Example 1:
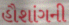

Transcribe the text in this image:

હૌશાંગની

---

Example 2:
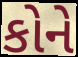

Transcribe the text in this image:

કોને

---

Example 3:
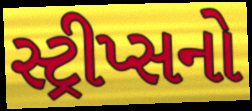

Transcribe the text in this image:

સ્ટ્રીપ્સનો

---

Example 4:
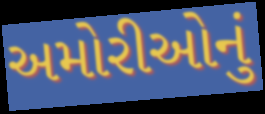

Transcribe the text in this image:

અમોરીઓનું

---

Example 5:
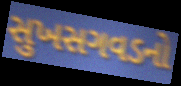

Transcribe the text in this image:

સુખસગવડનો